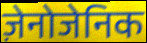
ज़ेनोजेनिक